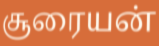
சூரையன்